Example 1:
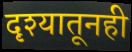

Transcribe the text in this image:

दृश्यातूनही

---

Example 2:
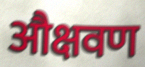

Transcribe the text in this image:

औक्षवण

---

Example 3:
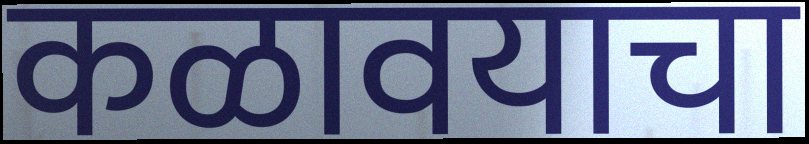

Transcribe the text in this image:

कळावयाचा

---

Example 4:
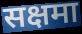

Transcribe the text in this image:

सक्षमा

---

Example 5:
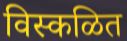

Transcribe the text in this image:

विस्कळित